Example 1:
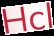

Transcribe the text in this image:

Hcl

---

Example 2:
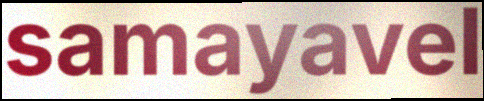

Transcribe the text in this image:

samayavel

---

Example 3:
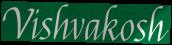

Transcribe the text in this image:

Vishvakosh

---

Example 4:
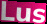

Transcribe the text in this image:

Lus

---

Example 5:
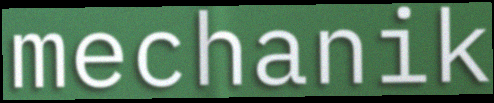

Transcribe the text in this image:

mechanik